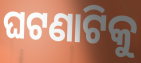
ଘଟଣାଟିକୁ